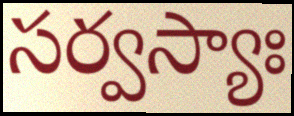
సర్వస్యాః